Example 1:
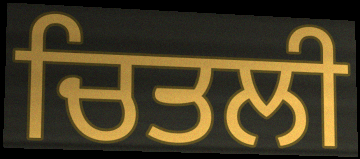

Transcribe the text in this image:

ਚਿਤਲੀ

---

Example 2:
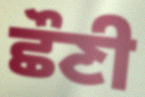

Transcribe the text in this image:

ਛੌਣੀ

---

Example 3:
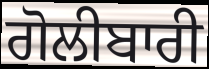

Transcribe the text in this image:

ਗੋਲੀਬਾਰੀ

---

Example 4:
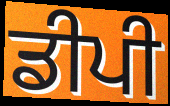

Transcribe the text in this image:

ਡੀਪੀ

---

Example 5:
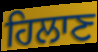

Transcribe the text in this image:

ਹਿਲਾਣ